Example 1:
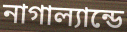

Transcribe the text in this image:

নাগাল্যান্ডে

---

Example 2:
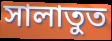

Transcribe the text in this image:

সালাতুত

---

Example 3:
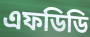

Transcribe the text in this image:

এফডিডি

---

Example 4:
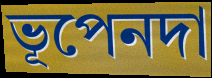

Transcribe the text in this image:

ভূপেনদা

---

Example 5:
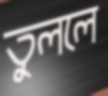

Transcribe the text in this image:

তুললে